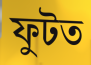
ফুটত